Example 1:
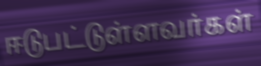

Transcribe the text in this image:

ஈடுபட்டுள்ளவர்கள்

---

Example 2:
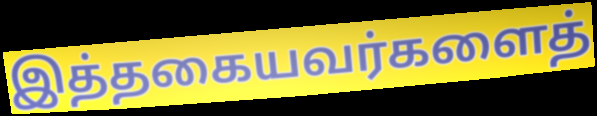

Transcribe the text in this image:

இத்தகையவர்களைத்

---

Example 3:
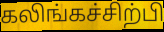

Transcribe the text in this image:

கலிங்கச்சிற்பி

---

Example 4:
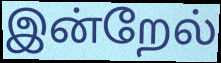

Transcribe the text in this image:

இன்றேல்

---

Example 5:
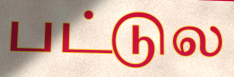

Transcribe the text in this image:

பட்டுல